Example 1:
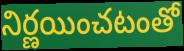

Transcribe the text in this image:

నిర్ణయించటంతో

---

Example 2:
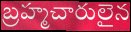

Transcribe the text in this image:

బ్రహ్మచారులైన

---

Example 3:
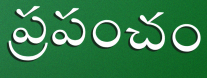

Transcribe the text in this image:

ప్రపంచం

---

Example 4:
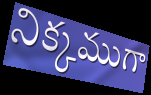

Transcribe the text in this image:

నిక్కముగా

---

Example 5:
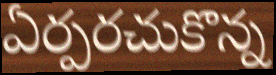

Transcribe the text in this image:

ఏర్పరచుకొన్న